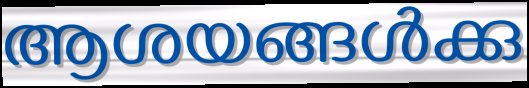
ആശയങ്ങൾക്കു